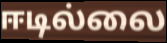
ஈடில்லை